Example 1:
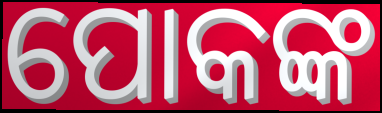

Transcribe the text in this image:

ପୋକଙ୍କ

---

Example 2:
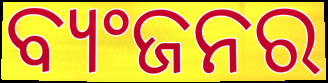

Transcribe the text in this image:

ବ୍ୟଂଜନର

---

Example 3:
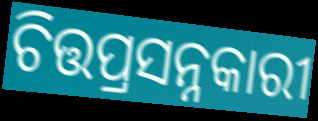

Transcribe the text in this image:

ଚିତ୍ତପ୍ରସନ୍ନକାରୀ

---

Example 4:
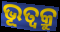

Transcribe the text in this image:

ଭୂତ୍ଵକ୍ରୁ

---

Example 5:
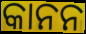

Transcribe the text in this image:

କାନନ